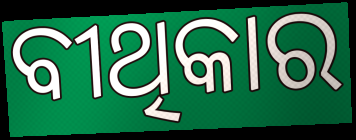
ବୀଥିକାର